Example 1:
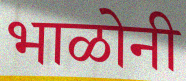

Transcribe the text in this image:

भाळोनी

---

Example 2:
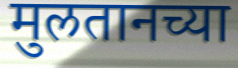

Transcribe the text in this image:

मुलतानच्या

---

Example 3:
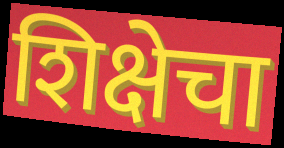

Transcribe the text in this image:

शिक्षेचा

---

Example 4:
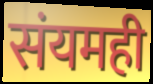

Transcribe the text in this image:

संयमही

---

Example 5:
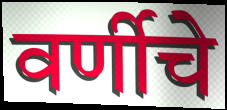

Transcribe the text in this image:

वर्णीचे